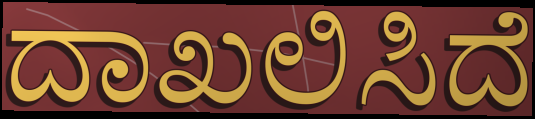
ದಾಖಲಿಸಿದೆ